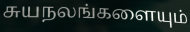
சுயநலங்களையும்